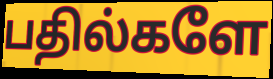
பதில்களே